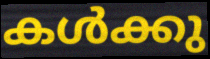
കൾക്കു